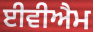
ਈਵੀਐਮ